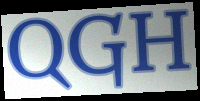
QGH